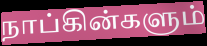
நாப்கின்களும்